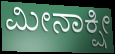
ಮೀನಾಕ್ಷೀ